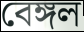
বেঙ্গল